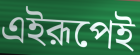
এইরূপেই